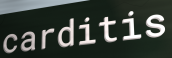
carditis